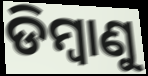
ଡିମ୍ବାଣୁ